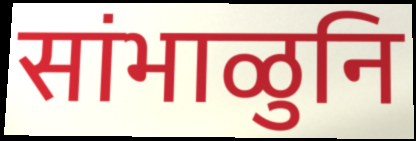
सांभाळुनि